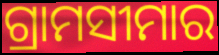
ଗ୍ରାମସୀମାର